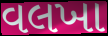
વલખા